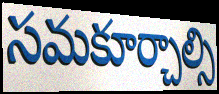
సమకూర్చాల్సి